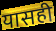
यासही